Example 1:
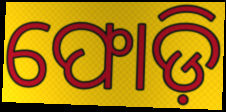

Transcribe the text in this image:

ଫୋଡ଼ି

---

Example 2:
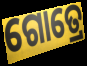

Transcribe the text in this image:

ଗୋତ୍ରେ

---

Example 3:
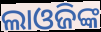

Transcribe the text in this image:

ଲାଓଜିଙ୍କ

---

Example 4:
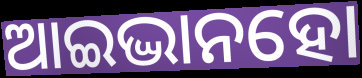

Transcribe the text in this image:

ଆଇଦ୍ଭାନହୋ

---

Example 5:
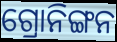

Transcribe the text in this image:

ଗ୍ରୋନିଙ୍ଗନ